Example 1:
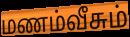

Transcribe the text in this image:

மணம்வீசும்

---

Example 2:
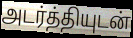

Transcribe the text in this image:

அடர்த்தியுடன்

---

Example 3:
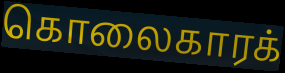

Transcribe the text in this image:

கொலைகாரக்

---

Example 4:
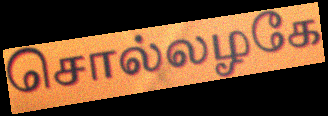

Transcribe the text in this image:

சொல்லழகே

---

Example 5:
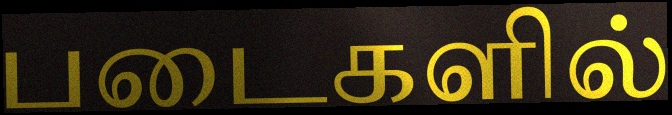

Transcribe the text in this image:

படைகளில்